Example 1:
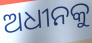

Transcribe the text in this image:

ଅଧୀନକୁ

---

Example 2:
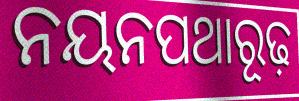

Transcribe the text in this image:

ନୟନପଥାରୂଢ଼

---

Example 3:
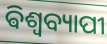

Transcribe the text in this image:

ଵିଶ୍ୱବ୍ୟାପୀ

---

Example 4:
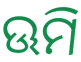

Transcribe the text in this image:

ଊମି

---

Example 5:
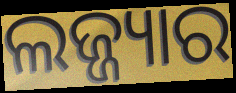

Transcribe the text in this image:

ଲଜ୍ଜ୍ୟାର